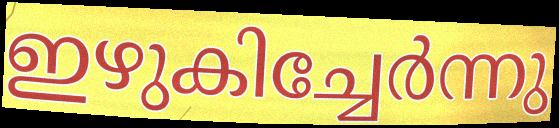
ഇഴുകിച്ചേർന്നു